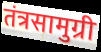
तंत्रसामुग्री